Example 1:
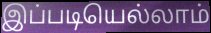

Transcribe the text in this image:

இப்படியெல்லாம்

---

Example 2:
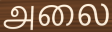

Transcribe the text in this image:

அலை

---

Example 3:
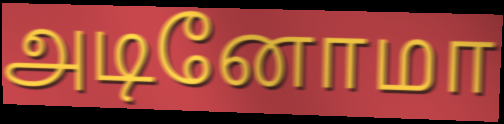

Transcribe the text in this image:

அடினோமா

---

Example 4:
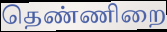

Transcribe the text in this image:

தெண்ணிறை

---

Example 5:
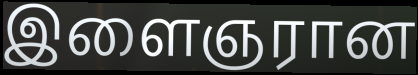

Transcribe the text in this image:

இளைஞரான